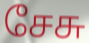
சேசு